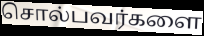
சொல்பவர்களை